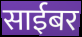
साईबर